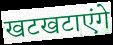
खटखटाएंगे